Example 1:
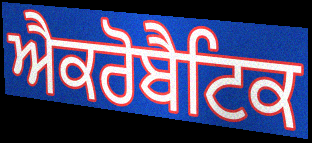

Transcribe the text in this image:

ਐਕਰੋਬੈਟਿਕ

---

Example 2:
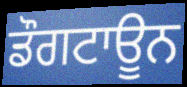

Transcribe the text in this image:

ਡੌਗਟਾਊਨ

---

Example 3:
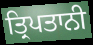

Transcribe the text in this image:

ਤ੍ਰਿਪਤਾਨੀ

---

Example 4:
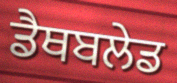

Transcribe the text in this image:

ਡੈਥਬਲੇਡ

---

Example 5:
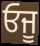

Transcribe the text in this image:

ਓਜੂ